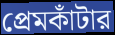
প্রেমকাঁটার